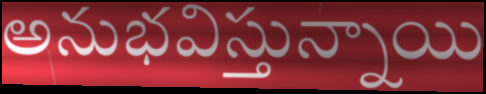
అనుభవిస్తున్నాయి